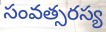
సంవత్సరస్య